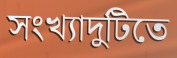
সংখ্যাদুটিতে